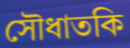
সৌধাতকি